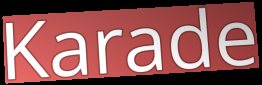
Karade